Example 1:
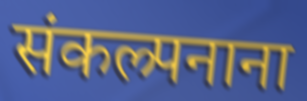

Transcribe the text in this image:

संकल्पनाना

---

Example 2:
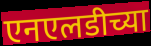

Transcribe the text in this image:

एनएलडीच्या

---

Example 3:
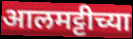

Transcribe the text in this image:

आलमट्टीच्या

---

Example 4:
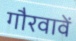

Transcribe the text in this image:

गौरवावें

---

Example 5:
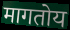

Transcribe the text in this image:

मागतोय